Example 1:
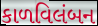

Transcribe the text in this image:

કાળવિલંબન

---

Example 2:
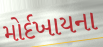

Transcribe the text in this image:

મોર્દખાયના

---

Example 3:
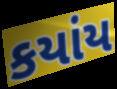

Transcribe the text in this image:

કયાંય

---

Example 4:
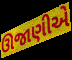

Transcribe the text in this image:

ઊજાણીએ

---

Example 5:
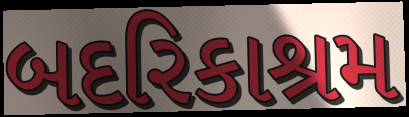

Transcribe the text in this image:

બદરિકાશ્રમ